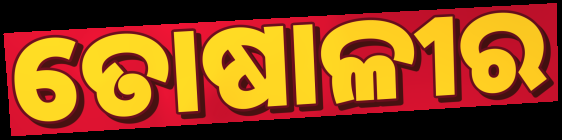
ତୋଷାଳୀର